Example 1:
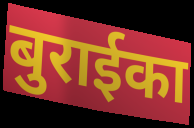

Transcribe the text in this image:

बुराईका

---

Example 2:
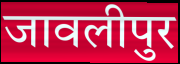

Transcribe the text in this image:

जावलीपुर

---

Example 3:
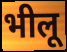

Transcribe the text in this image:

भीलू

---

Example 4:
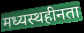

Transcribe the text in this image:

मध्यस्थहीनता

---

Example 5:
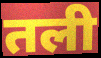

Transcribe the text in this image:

तली